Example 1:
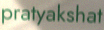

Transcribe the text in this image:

pratyakshat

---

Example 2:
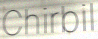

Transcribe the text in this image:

Chirbil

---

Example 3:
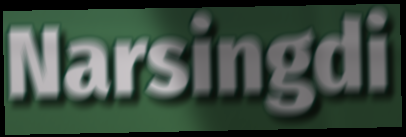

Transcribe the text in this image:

Narsingdi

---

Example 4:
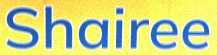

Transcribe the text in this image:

Shairee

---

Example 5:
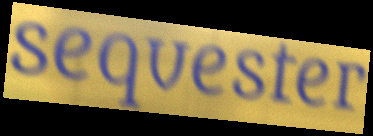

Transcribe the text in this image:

sequester